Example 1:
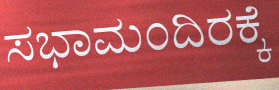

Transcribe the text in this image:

ಸಭಾಮಂದಿರಕ್ಕೆ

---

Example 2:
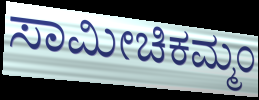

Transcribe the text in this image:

ಸಾಮೀಚಿಕಮ್ಮಂ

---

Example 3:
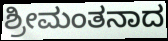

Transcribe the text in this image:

ಶ್ರೀಮಂತನಾದ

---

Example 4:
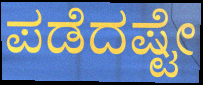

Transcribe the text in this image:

ಪಡೆದಷ್ಟೇ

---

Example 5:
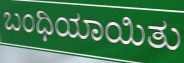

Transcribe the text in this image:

ಬಂಧಿಯಾಯಿತು